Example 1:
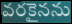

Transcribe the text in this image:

వరకైనను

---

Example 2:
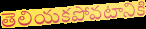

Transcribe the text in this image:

తెలియకపోవటానికి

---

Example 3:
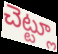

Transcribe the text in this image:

చెట్ట్లూ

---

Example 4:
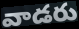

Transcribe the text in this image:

వాడరు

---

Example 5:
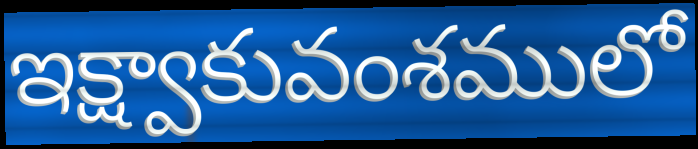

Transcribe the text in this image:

ఇక్ష్వాకువంశములో